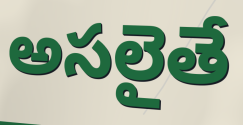
అసలైతే